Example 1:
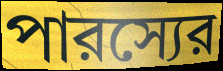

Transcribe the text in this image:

পারস্যের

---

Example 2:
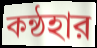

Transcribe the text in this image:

কন্ঠহার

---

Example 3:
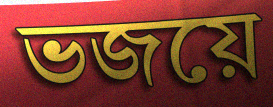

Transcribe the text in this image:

ভজয়ে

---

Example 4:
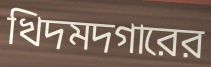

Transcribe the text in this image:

খিদমদগারের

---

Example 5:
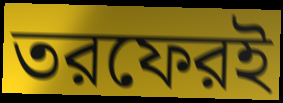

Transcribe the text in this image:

তরফেরই